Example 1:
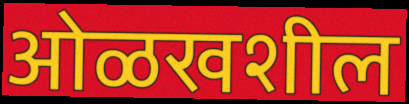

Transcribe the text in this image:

ओळखशील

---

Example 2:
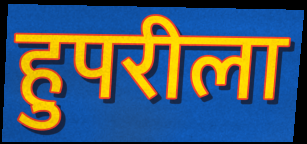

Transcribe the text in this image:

हुपरीला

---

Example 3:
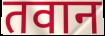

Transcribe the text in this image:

तवान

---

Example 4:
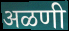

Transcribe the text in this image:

अळणी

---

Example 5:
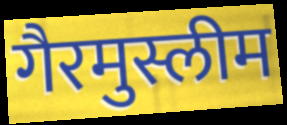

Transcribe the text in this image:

गैरमुस्लीम